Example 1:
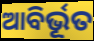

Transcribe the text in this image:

ଆବିର୍ଭୂତ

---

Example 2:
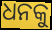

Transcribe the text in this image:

ଧନକୁ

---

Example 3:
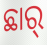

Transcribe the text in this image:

ଛାର୍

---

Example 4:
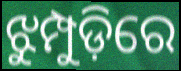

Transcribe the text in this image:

ଝୁମ୍ପୁଡ଼ିରେ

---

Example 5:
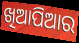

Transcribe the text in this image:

ଖିଆପିଆର